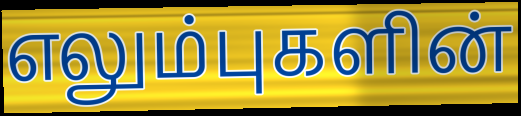
எலும்புகளின்